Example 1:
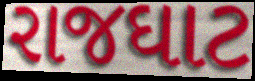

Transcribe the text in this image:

રાજઘાટ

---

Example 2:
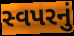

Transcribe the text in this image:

સ્વપરનું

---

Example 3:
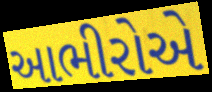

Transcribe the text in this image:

આભીરોએ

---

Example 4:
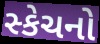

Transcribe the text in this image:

સ્કેચનો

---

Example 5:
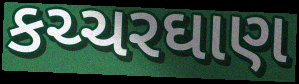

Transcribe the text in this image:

કચ્ચરઘાણ